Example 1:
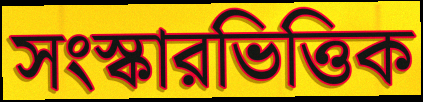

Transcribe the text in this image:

সংস্কারভিত্তিক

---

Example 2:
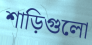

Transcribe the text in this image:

শাড়িগুলো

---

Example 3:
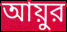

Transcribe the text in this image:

আয়ুর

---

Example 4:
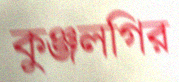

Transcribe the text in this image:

কুঞ্জলগির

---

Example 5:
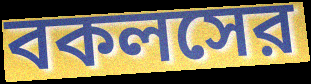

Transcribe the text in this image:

বকলসের